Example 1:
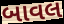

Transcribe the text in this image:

બાવલ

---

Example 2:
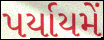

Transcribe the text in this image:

પર્યાયમેં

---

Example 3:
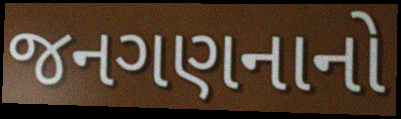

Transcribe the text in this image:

જનગણનાનો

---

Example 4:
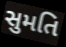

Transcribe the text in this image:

સુમતિ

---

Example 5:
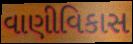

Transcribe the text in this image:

વાણીવિકાસ